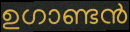
ഉഗാണ്ടൻ